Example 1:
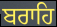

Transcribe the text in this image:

ਬਰਾਹਿ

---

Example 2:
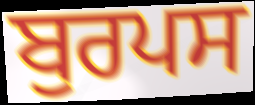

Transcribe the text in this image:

ਬੁਰਪਸ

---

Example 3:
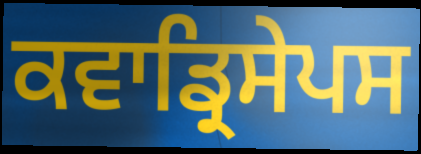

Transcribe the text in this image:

ਕਵਾਡ੍ਰਿਸੇਪਸ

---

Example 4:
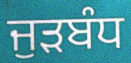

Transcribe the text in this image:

ਜੁੜਬੰਧ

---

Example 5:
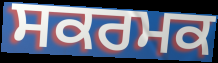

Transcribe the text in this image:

ਸਕਰਮਕ